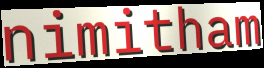
nimitham